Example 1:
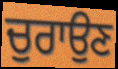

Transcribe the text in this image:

ਚੁਰਾਉਣ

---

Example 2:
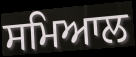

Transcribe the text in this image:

ਸਮਿਆਲ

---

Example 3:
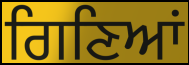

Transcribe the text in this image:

ਗਿਣਿਆਂ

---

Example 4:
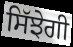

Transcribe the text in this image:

ਸਿੱਝੇਗੀ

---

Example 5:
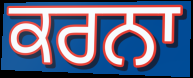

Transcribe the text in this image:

ਕਰਨਾ